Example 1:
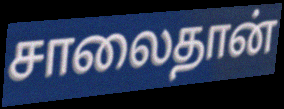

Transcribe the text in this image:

சாலைதான்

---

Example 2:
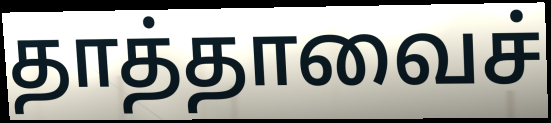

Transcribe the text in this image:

தாத்தாவைச்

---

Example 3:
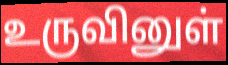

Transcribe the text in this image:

உருவினுள்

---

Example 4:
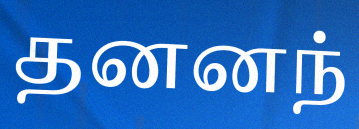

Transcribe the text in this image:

தனனந்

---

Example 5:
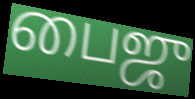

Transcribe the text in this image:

பைஜு